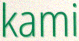
kami